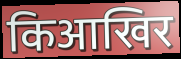
किआखिर